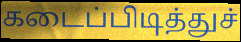
கடைப்பிடித்துச்